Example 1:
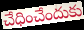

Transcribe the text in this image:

చేధించేందుకు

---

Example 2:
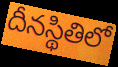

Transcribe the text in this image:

దీనస్థితిలో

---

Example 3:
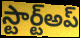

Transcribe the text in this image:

స్టార్ట్అప్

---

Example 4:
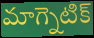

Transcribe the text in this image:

మాగ్నెటిక్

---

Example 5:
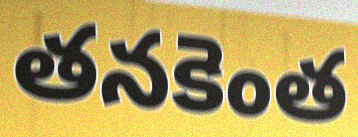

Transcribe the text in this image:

తనకెంత